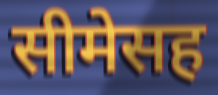
सीमेसह